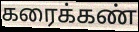
கரைக்கண்